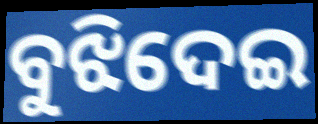
ବୁଝିଦେଇ